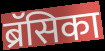
ब्रॅसिका